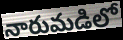
నారుమడిలో